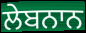
ਲੇਬਨਾਨ